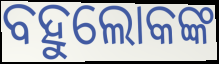
ବହୁଲୋକଙ୍କ